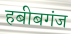
हबीबगंज